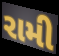
રામી